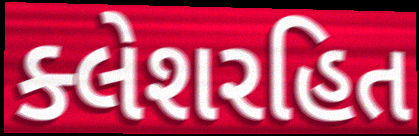
ક્લેશરહિત